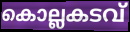
കൊല്ലകടവ്